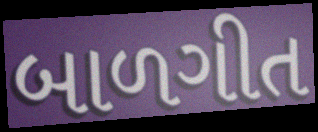
બાળગીત